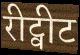
रीट्वीट